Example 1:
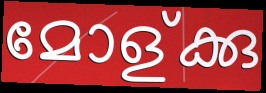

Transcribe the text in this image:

മോള്ക്കു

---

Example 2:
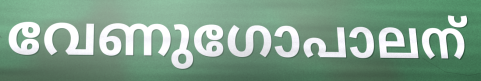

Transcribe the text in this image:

വേണുഗോപാലന്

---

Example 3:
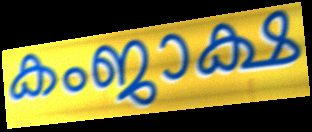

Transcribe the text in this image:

കംജാക്ഷ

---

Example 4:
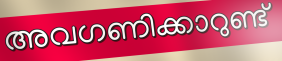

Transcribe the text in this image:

അവഗണിക്കാറുണ്ട്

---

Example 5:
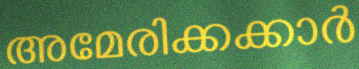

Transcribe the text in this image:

അമേരിക്കക്കാർ